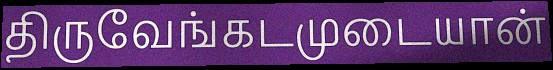
திருவேங்கடமுடையான்